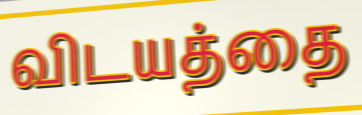
விடயத்தை